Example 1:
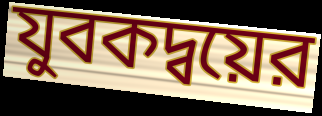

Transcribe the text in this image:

যুবকদ্বয়ের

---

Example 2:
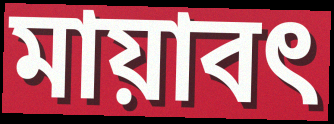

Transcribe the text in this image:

মায়াবৎ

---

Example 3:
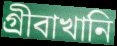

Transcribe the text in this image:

গ্রীবাখানি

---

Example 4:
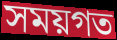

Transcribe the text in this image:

সময়গত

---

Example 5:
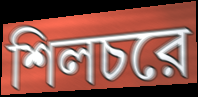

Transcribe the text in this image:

শিলচরে